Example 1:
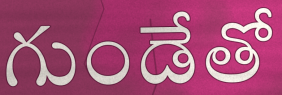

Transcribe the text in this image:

గుండేతో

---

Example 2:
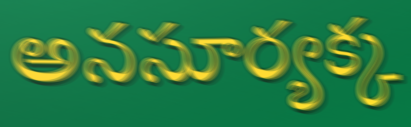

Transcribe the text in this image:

అనసూర్యక్క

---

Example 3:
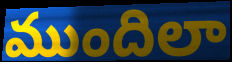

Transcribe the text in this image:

ముందిలా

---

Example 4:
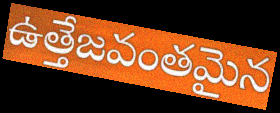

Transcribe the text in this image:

ఉత్తేజవంతమైన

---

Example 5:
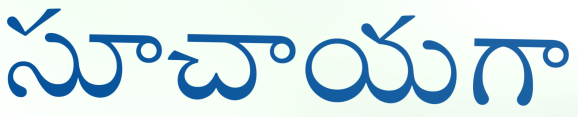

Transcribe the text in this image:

సూచాయగా